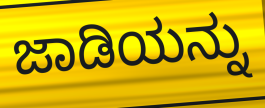
ಜಾಡಿಯನ್ನು